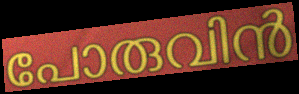
പോരുവിൻ